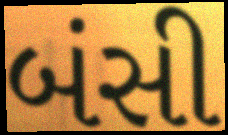
બંસી